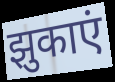
झुकाएं